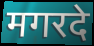
मगरदे